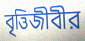
বৃত্তিজীবীর